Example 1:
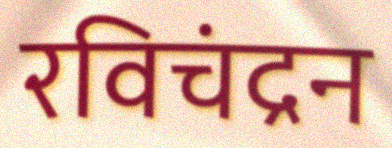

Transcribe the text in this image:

रविचंद्रन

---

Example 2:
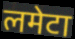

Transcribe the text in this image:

लमेटा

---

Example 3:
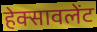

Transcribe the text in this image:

हेक्सावलेंट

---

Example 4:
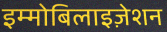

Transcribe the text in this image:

इम्मोबिलाइज़ेशन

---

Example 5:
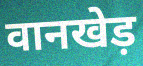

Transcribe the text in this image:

वानखेड़